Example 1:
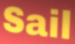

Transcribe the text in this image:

Sail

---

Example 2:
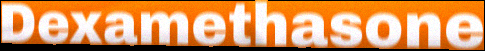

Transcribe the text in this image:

Dexamethasone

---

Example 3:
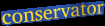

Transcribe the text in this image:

conservator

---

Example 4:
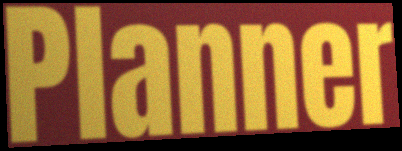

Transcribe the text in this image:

Planner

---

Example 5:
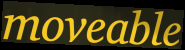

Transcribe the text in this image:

moveable